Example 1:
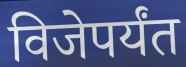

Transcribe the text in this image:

विजेपर्यंत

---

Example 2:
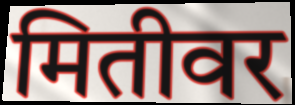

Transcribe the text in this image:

मितीवर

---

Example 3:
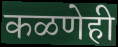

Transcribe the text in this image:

कळणेही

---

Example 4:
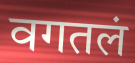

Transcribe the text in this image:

वगतलं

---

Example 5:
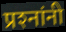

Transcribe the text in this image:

प्रश्नांनी